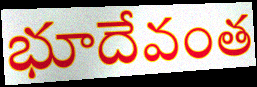
భూదేవంత